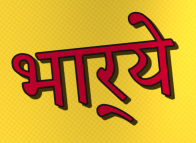
भार्ये